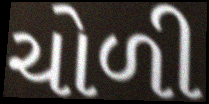
ચોળી